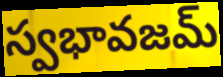
స్వభావజమ్